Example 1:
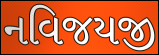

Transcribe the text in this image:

નવિજયજી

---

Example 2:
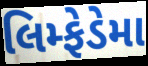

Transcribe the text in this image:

લિમ્ફેડેમા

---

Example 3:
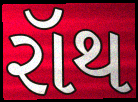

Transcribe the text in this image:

રૉથ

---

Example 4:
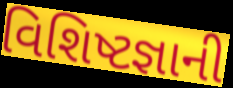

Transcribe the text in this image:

વિશિષ્ટજ્ઞાની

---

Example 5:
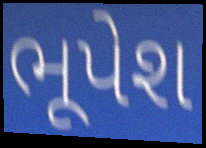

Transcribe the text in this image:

ભૂપેશ